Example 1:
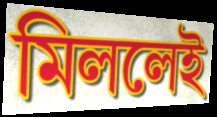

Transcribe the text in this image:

মিললেই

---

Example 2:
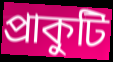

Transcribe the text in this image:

প্রাকুটি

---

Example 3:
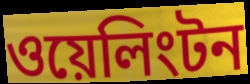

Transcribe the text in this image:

ওয়েলিংটন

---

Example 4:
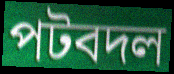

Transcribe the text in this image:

পটবদল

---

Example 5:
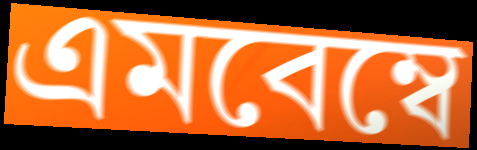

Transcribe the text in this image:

এমবেম্বে